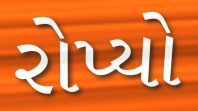
રોપ્યો